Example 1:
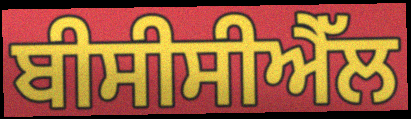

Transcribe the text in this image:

ਬੀਸੀਸੀਐੱਲ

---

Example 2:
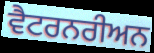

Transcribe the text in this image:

ਵੈਟਰਨਰੀਅਨ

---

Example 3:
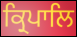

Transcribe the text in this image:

ਕ੍ਰਿਪਾਲਿ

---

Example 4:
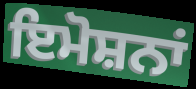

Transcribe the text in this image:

ਇਮੋਸ਼ਨਾਂ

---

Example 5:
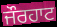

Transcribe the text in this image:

ਜੌਰਹਾਟ